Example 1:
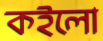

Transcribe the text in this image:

কইলো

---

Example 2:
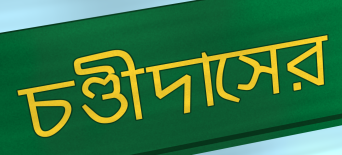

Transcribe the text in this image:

চণ্ডীদাসের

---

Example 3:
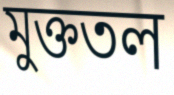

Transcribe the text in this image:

মুক্ততল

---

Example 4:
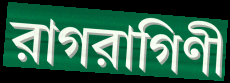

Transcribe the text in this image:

রাগরাগিণী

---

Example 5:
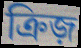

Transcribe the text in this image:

ক্রিজ়